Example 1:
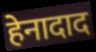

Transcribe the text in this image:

हेनादाद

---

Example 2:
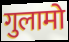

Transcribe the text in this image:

गुलामो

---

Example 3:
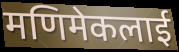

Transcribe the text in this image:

मणिमेकलाई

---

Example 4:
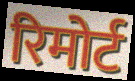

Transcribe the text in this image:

रिमोर्ट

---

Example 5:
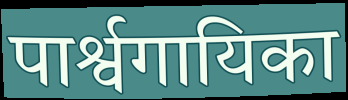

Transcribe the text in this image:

पार्श्वगायिका